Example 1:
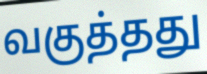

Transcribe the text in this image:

வகுத்தது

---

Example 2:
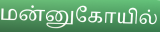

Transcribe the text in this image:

மன்னுகோயில்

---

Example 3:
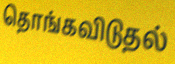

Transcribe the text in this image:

தொங்கவிடுதல்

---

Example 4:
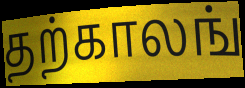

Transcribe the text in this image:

தற்காலங்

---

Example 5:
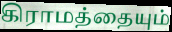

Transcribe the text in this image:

கிராமத்தையும்